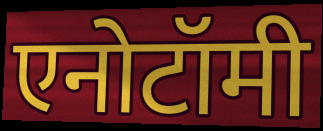
एनोटॉमी